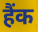
हैंक